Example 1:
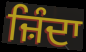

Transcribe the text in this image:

ਜ਼ਿੰਦਾ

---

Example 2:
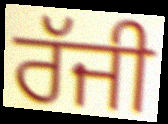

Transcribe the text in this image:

ਰੱਜੀ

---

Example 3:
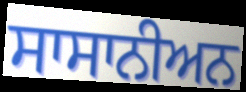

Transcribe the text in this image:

ਸਾਸਾਨੀਅਨ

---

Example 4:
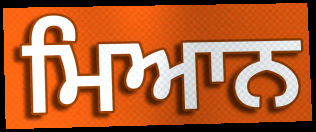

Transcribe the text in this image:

ਮਿਆਨ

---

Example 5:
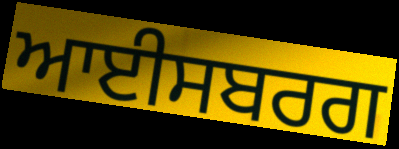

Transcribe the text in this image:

ਆਈਸਬਰਗ